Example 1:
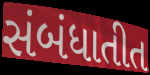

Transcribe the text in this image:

સંબંધાતીત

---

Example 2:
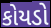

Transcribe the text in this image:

કોયડો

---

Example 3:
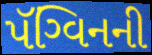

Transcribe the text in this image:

પૅંગ્વિનની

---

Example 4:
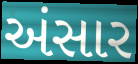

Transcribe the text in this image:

અંસાર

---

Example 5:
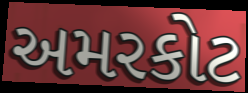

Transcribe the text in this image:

અમરકોટ